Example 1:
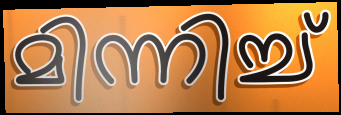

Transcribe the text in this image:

മിന്നിച്ച്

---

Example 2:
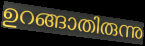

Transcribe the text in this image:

ഉറങ്ങാതിരുന്നു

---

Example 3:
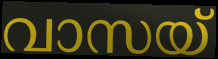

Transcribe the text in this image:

വാസയ്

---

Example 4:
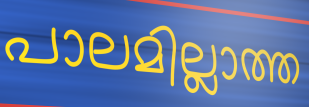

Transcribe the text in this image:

പാലമില്ലാത്ത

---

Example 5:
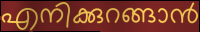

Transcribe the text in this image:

എനിക്കുറങ്ങാൻ